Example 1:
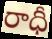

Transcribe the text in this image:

రాధీ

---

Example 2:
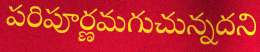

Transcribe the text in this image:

పరిపూర్ణమగుచున్నదని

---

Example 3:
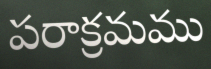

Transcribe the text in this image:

పరాక్రమము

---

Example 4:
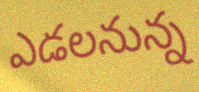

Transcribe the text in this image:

ఎడలనున్న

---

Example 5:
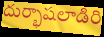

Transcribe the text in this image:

దుర్భాషలాడిరి